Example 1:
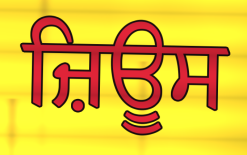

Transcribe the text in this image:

ਜ਼ਿਊਸ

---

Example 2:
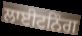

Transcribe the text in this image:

ਲਾਈਟਨਿੰਗ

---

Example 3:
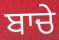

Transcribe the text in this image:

ਬਾਚੇ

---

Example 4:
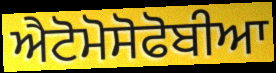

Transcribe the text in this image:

ਐਟੋਮੋਸੋਫੋਬੀਆ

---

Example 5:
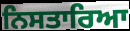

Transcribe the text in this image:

ਨਿਸਤਾਰਿਆ